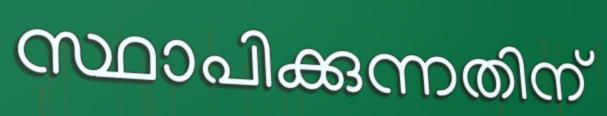
സ്ഥാപിക്കുന്നതിന്